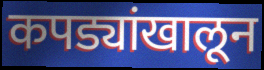
कपड्यांखालून